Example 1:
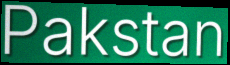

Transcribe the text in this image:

Pakstan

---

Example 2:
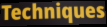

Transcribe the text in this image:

Techniques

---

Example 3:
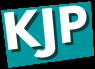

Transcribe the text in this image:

KJP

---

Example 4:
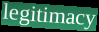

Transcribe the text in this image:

legitimacy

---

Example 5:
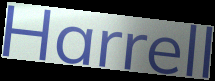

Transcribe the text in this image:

Harrell